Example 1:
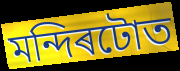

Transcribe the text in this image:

মন্দিৰটোত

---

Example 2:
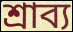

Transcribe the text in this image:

শ্ৰাব্য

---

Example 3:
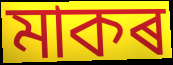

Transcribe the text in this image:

মাকৰ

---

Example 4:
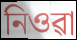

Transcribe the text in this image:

নিওৱা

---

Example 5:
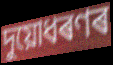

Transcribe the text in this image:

দুয়োধৰণৰ